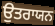
ਉਤਰਾਯਨ